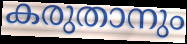
കരുതാനും